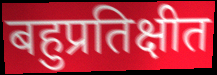
बहुप्रतिक्षीत